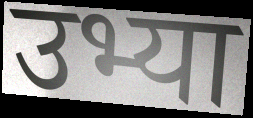
उभ्या